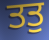
ਤਤੁ